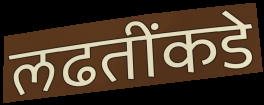
लढतींकडे